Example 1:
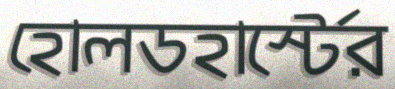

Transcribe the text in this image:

হোলডহার্স্টের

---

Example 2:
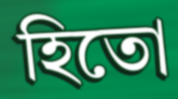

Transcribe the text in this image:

হিতো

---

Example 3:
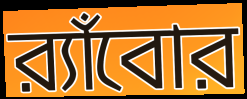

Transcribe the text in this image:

র‍্যাঁবোর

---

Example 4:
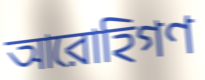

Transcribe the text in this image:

আরোহিগণ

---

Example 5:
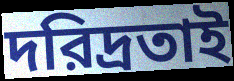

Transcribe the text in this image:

দরিদ্রতাই